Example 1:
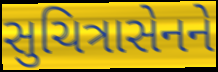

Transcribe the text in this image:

સુચિત્રાસેનને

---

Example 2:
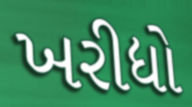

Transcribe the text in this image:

ખરીદ્યો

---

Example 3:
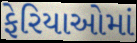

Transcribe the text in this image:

ફેરિયાઓમાં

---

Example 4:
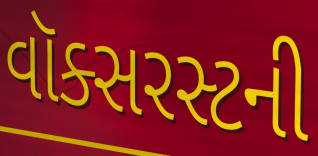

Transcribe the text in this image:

વૉક્સરસ્ટની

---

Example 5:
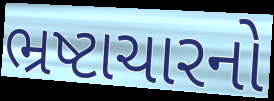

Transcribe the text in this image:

ભ્રષ્ટાચારનો